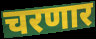
चरणार